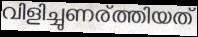
വിളിച്ചുണര്ത്തിയത്